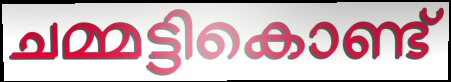
ചമ്മട്ടികൊണ്ട്